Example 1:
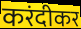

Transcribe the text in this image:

करंदीकर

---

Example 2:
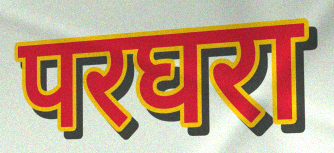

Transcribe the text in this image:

परघरा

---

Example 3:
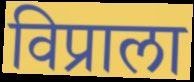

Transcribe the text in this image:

विप्राला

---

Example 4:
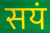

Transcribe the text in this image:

सयं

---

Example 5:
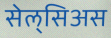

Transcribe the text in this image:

सेल्सिअस